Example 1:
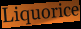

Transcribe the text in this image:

Liquorice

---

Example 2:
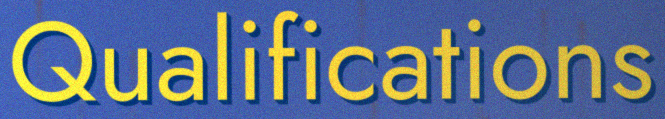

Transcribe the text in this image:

Qualifications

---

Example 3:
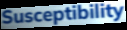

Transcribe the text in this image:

Susceptibility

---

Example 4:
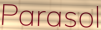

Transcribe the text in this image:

Parasol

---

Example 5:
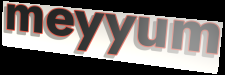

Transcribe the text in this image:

meyyum